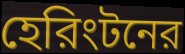
হেরিংটনের